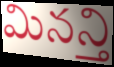
మినన్తి